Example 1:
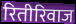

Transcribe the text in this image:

रितीरिवाज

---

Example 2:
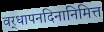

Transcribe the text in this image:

वर्धापनदिनानिमित्त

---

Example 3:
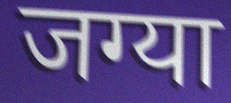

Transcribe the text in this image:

जग्या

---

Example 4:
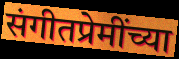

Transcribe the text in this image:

संगीतप्रेमींच्या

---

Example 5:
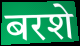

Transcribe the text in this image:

बरशे